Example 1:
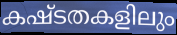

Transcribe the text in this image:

കഷ്ടതകളിലും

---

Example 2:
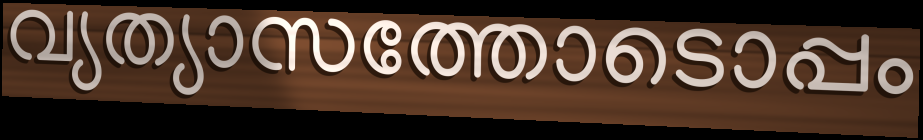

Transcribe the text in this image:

വ്യത്യാസത്തോടൊപ്പം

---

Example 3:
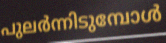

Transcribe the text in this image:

പുലർന്നിടുമ്പോൾ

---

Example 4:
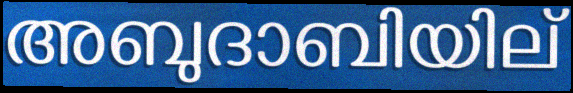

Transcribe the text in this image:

അബുദാബിയില്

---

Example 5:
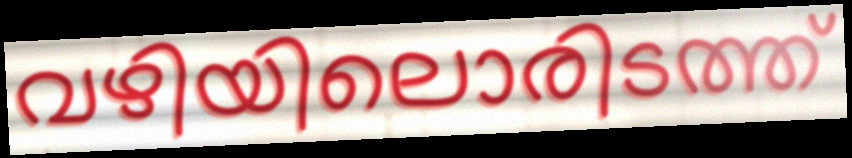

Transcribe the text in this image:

വഴിയിലൊരിടത്ത്